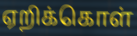
ஏறிக்கொள்